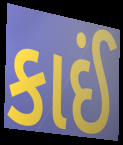
કાઈં